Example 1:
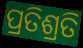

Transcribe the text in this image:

ପ୍ରତିଶ୍ରତି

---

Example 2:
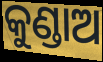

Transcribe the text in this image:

କୁଣ୍ଡାଅ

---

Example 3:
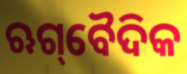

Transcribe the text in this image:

ଋଗ୍‌ବୈଦିକ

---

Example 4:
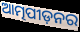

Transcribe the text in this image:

ଆତ୍ମପୀଡ଼ନର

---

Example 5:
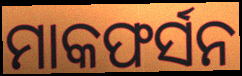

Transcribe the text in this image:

ମାକଫର୍ସନ